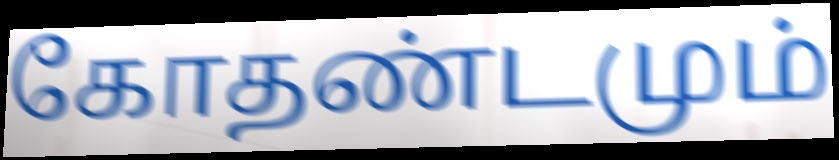
கோதண்டமும்